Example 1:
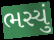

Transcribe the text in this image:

ભસ્યું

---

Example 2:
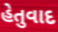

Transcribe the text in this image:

હેતુવાદ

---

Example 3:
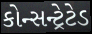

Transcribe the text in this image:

કોન્સન્ટ્રેટેડ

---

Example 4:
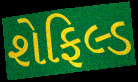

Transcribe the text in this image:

શેફિલ્ડ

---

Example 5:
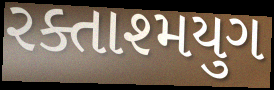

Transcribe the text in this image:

રક્તાશ્મયુગ